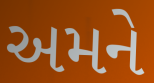
અમને